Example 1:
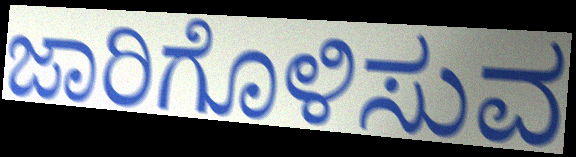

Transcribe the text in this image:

ಜಾರಿಗೊಳಿಸುವ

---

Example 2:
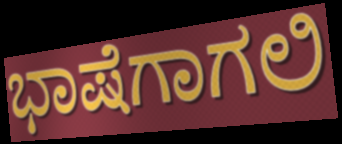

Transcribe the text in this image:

ಭಾಷೆಗಾಗಲಿ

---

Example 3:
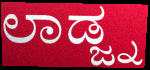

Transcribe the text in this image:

ಲಾಡ್ಜ್ನ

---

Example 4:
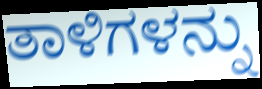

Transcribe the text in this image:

ತಾಳಿಗಳನ್ನು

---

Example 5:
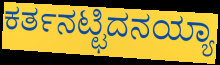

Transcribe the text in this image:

ಕರ್ತನಟ್ಟಿದನಯ್ಯಾ